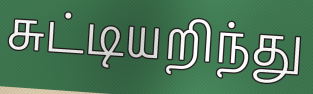
சுட்டியறிந்து